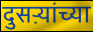
दुसऱ्‍यांच्या